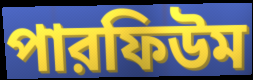
পারফিউম